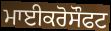
ਮਾਈਕਰੋਸੌਫਟ